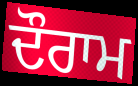
ਦੌਰਾਮ